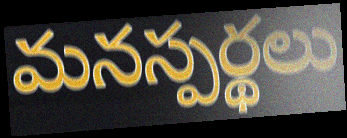
మనస్పర్థలు